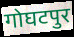
गोघटपुर